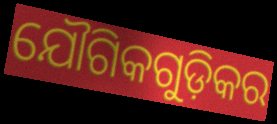
ଯୌଗିକଗୁଡ଼ିକର